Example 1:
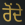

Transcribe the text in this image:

ਰੋਂਦੇ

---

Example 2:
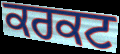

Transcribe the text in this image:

ਕਰਕਟ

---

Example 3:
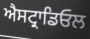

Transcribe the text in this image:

ਐਸਟ੍ਰਾਡਿਓਲ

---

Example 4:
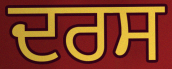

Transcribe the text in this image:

ਦਰਸ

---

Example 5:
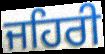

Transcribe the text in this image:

ਜਹਿਰੀ